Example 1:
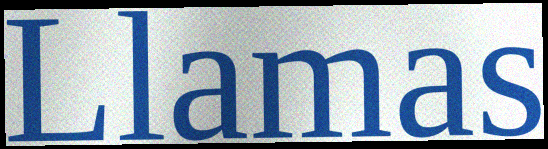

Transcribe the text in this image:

Llamas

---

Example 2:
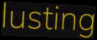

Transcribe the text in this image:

lusting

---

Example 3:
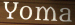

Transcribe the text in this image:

Yoma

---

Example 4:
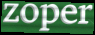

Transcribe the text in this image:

zoper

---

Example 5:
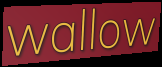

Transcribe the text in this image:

wallow